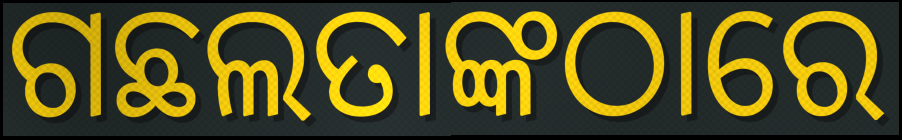
ଗଛଲତାଙ୍କଠାରେ